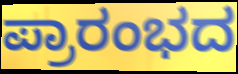
ಪ್ರಾರಂಭದ